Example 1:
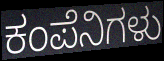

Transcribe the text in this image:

ಕಂಪೆನಿಗಳು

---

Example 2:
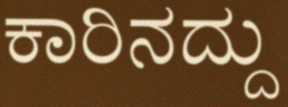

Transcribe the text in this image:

ಕಾರಿನದ್ದು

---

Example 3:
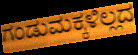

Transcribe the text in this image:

ಗಂಡುಮಕ್ಕಳಿಲ್ಲದ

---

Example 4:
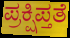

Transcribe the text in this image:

ಪ್ರಕ್ಷಿಪ್ತತೆ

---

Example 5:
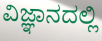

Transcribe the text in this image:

ವಿಜ್ಞಾನದಲ್ಲಿ